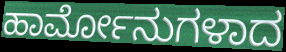
ಹಾರ್ಮೋನುಗಳಾದ